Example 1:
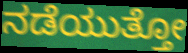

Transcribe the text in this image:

ನಡೆಯುತ್ತೋ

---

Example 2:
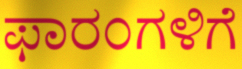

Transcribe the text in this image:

ಫಾರಂಗಳಿಗೆ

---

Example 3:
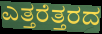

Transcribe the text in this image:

ಎತ್ತರೆತ್ತರದ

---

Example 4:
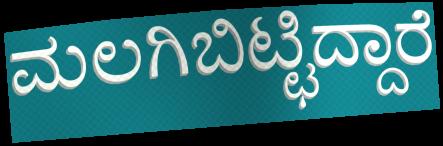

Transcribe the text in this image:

ಮಲಗಿಬಿಟ್ಟಿದ್ದಾರೆ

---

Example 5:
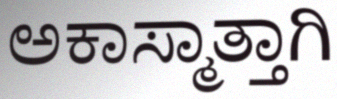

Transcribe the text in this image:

ಅಕಾಸ್ಮಾತ್ತಾಗಿ